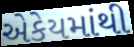
એકેયમાંથી